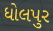
ધોલપુર